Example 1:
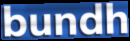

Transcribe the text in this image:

bundh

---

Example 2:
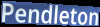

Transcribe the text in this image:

Pendleton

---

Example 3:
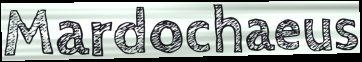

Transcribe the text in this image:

Mardochaeus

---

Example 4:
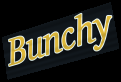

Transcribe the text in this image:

Bunchy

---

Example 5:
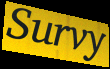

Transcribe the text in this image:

Survy